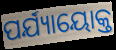
ପର୍ଯ୍ୟାୟୋକ୍ତ